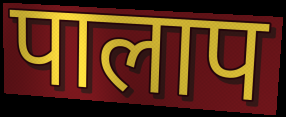
पालाप